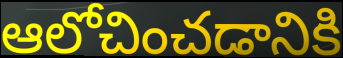
ఆలోచించడానికి